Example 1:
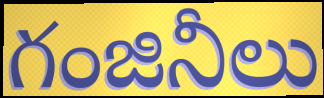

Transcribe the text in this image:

గంజినీలు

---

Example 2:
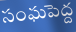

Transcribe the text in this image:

సంఘపెద్ద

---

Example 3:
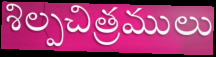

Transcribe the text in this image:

శిల్పచిత్రములు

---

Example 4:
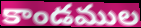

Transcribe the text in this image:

కాండముల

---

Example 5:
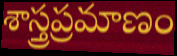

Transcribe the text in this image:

శాస్త్రప్రమాణం